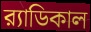
র‍্যাডিকাল